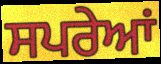
ਸਪਰੇਆਂ